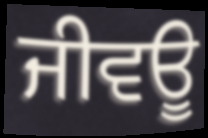
ਜੀਵਊ